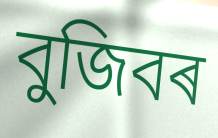
বুজিবৰ